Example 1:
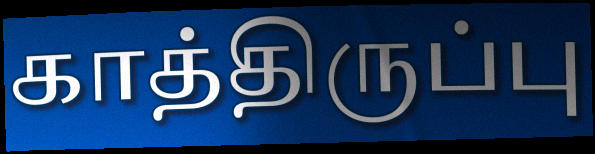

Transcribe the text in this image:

காத்திருப்பு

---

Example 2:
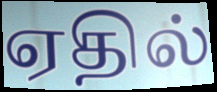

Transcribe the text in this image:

ஏதில்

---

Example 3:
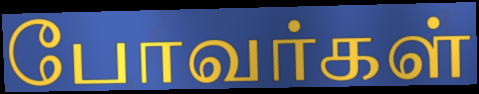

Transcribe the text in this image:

போவர்கள்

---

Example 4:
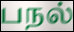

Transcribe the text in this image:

பநல்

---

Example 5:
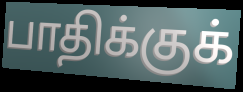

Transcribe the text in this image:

பாதிக்குக்